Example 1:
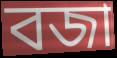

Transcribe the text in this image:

বজা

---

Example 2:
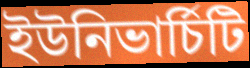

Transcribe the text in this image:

ইউনিভাৰ্চিটি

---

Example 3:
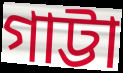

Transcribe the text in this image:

গাট্টা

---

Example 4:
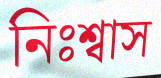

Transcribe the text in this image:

নিঃশ্বাস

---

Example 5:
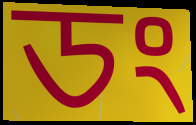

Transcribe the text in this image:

ডং